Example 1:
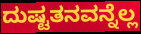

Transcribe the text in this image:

ದುಷ್ಟತನವನ್ನೆಲ್ಲ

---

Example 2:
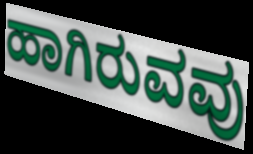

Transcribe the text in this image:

ಹಾಗಿರುವವು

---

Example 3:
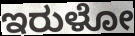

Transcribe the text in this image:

ಇರುಳೋ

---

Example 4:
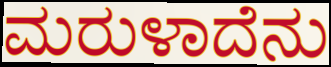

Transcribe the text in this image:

ಮರುಳಾದೆನು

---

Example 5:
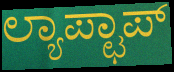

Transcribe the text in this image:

ಲ್ಯಾಪ್ಟಾಪ್